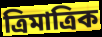
ত্রিমাত্রিক